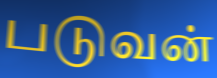
படுவன்